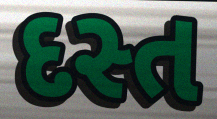
દસ્ત